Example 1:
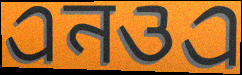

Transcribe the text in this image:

এনওএ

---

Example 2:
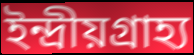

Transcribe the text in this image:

ইন্দ্রীয়গ্রাহ্য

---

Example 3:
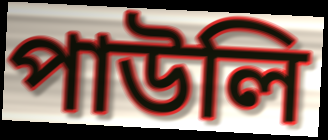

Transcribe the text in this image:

পাউলি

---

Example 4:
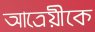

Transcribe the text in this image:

আত্রেয়ীকে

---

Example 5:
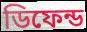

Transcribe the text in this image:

ডিফেন্ড